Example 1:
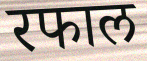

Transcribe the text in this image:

रफाल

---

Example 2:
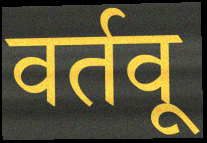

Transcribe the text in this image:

वर्तवू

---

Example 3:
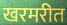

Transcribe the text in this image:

खरमरीत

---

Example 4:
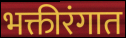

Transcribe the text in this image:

भक्तीरंगात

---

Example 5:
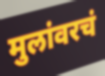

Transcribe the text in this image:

मुलांवरचं